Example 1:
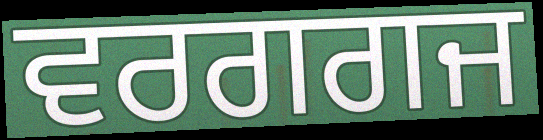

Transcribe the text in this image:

ਵਰਗਗਜ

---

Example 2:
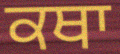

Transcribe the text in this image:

ਕਥਾ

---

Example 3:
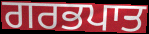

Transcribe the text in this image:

ਗਰਭਪਾਤ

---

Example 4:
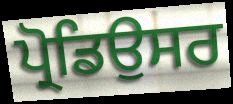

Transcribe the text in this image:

ਪ੍ਰੋਡਿਉਸਰ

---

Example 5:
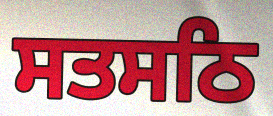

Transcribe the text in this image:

ਸਤਸਠਿ